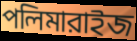
পলিমারাইজ